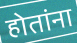
होतांना